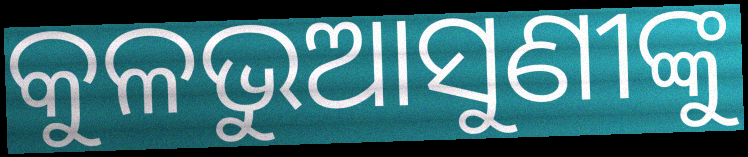
କୁଳଭୁଆସୁଣୀଙ୍କୁ